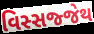
વિસ્સજ્જેથ